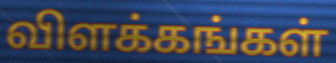
விளக்கங்கள்